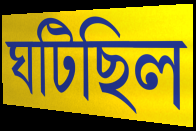
ঘটিছিল